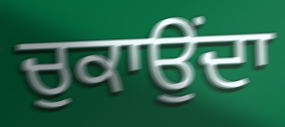
ਚੁਕਾਉਂਦਾ